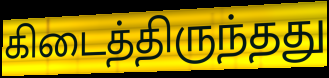
கிடைத்திருந்தது